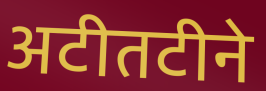
अटीतटीने